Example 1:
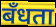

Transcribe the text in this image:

बँधता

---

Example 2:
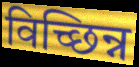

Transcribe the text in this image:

विच्छिन्न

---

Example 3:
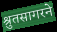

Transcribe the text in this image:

श्रुतसागरने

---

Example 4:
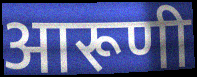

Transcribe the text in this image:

आरूणी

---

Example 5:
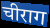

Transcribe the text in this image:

चीराग